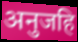
अनुजहि